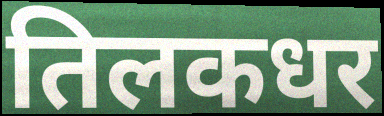
तिलकधर